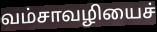
வம்சாவழியைச்